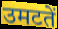
उमटतें